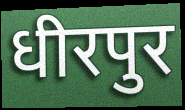
धीरपुर